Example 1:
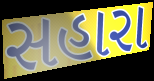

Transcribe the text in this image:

સહારા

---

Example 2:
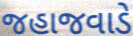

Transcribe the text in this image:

જહાજવાડે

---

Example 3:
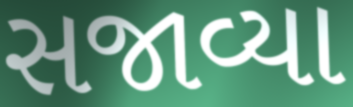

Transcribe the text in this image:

સજાવ્યા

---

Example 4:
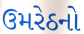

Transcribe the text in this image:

ઉમરેઠનો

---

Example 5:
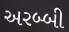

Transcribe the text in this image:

અરબ્બી